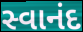
સ્વાનંદ